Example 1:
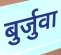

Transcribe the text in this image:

बुर्जुवा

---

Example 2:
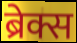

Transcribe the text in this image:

ब्रेक्स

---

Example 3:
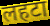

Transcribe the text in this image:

लहटा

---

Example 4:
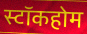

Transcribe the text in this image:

स्टॉकहोम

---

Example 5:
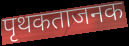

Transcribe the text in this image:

पृथकताजनक